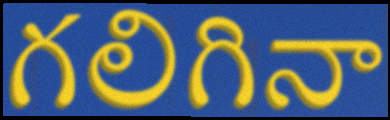
గలిగినా